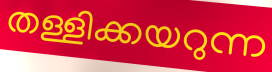
തള്ളിക്കയറുന്ന